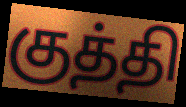
குத்தி